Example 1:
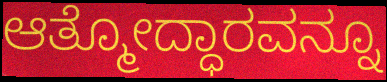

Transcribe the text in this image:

ಆತ್ಮೋದ್ಧಾರವನ್ನೂ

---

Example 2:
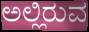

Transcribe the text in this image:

ಅಲ್ಲಿರುವ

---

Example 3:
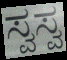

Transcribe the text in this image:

ಸ್ವಸ್ವ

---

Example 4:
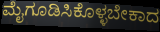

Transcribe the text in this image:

ಮೈಗೂಡಿಸಿಕೊಳ್ಳಬೇಕಾದ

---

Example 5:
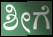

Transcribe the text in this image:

ಶೀಗೆ